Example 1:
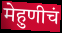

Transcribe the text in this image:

मेहुणीचं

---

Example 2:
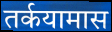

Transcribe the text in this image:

तर्कयामास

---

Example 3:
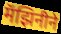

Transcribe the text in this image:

मॅझिनीने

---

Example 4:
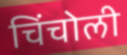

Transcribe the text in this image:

चिंचोली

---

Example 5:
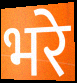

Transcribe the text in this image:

भरे